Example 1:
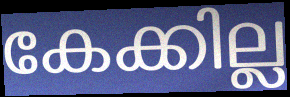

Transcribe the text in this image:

കേക്കില്ല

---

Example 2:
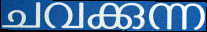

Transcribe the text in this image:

ചവക്കുന്ന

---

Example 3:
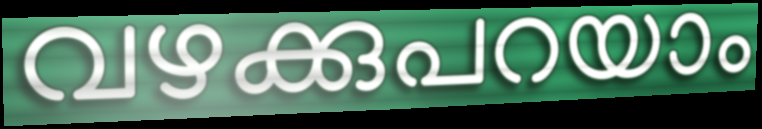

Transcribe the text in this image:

വഴക്കുപറയാം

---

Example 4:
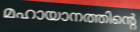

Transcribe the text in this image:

മഹായാനത്തിന്റെ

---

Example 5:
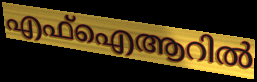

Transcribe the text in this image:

എഫ്ഐആറിൽ